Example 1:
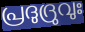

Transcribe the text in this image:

പ്രദുദ്രുവുഃ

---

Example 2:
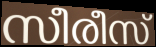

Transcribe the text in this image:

സീരീസ്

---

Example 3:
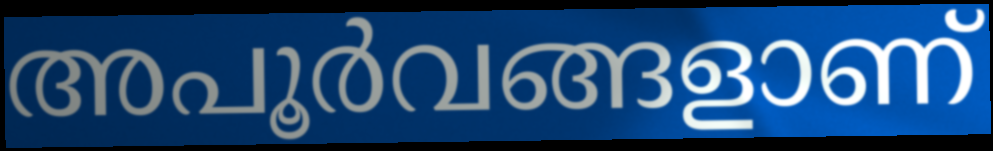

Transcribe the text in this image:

അപൂർവങ്ങളാണ്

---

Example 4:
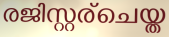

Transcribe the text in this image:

രജിസ്റ്റര്ചെയ്ത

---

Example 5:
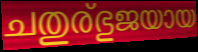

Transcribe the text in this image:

ചതുര്ഭുജയായ